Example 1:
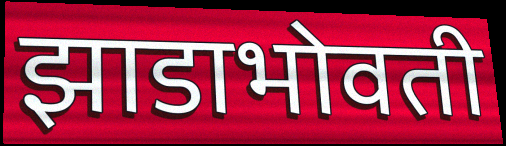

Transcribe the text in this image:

झाडाभोवती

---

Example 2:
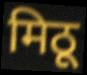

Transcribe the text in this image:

मिठू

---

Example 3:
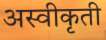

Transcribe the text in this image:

अस्वीकृती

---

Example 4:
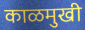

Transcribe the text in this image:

काळमुखी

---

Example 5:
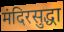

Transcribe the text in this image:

मंदिरसुद्धा